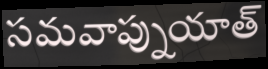
సమవాప్నుయాత్